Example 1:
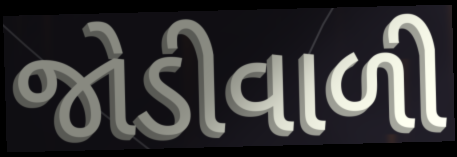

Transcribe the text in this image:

જોડીવાળી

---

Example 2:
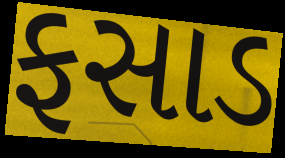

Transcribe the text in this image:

ફસાડ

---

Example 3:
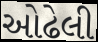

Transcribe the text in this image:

ઓઢેલી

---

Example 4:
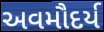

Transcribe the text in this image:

અવમૌદર્ય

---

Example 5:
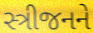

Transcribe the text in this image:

સ્ત્રીજનને